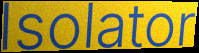
Isolator